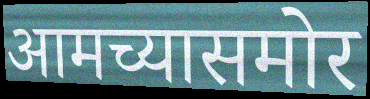
आमच्यासमोर